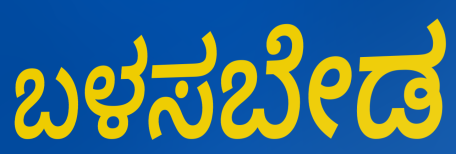
ಬಳಸಬೇಡ